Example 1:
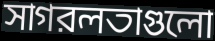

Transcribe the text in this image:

সাগরলতাগুলো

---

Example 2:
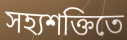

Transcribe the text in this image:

সহ্যশক্তিতে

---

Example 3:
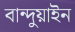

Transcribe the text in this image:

বান্দুয়াইন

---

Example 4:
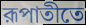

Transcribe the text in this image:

রূপাতীতে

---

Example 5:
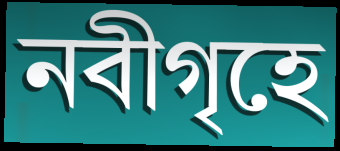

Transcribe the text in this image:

নবীগৃহে